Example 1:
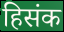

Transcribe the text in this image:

हिसंक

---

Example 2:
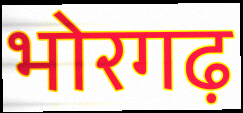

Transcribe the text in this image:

भोरगढ़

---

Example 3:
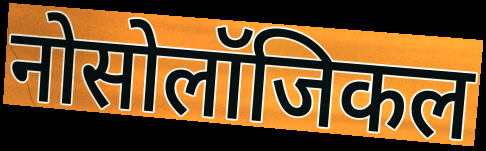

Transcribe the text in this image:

नोसोलॉजिकल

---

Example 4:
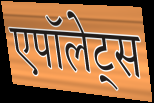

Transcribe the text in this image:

एपॉलेट्स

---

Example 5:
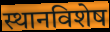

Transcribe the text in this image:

स्थानविशेष